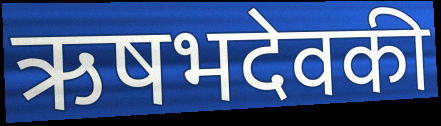
ऋषभदेवकी